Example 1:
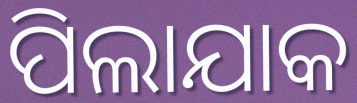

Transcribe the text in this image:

ପିଲାଯାକ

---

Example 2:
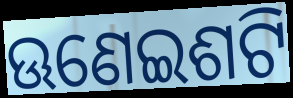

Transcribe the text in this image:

ଊଣେଇଶଟି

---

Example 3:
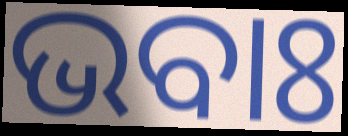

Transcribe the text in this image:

ଭବାଃ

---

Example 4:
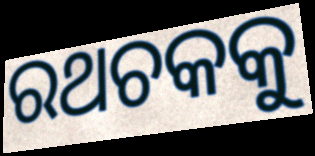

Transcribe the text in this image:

ରଥଚକକୁ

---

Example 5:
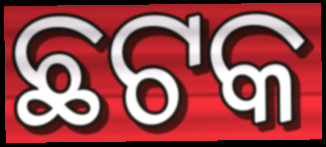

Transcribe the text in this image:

ଛଟକ